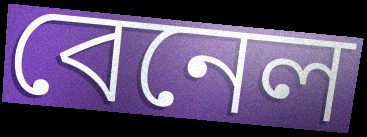
বেনেল